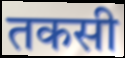
तकसी